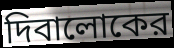
দিবালোকের